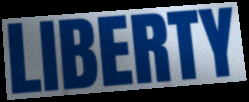
LIBERTY